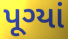
પૂગ્યાં